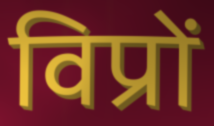
विप्रों